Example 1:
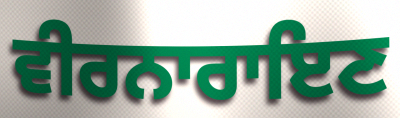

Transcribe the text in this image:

ਵੀਰਨਾਰਾਇਣ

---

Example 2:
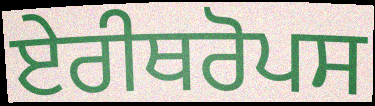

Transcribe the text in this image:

ਏਰੀਥਰੋਪਸ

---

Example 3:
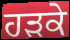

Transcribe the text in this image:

ਹੜਕੇ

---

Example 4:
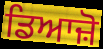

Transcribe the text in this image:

ਡਿਆਜ਼ੋ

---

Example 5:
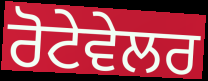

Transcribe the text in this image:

ਰੋਟੇਵੇਲਰ